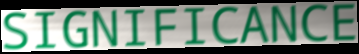
SIGNIFICANCE